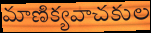
మాణిక్యవాచకుల